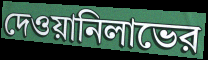
দেওয়ানিলাভের